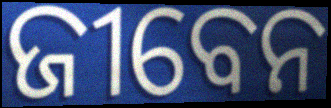
ଜୀବେନ